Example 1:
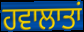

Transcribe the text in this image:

ਹਵਾਲਾਤਾਂ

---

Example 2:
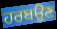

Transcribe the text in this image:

ਹਰਬਉਣ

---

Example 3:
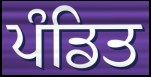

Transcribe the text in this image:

ਪੰਡਿਤ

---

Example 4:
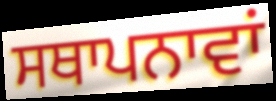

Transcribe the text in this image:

ਸਥਾਪਨਾਵਾਂ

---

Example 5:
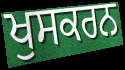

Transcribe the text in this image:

ਖੁਸਕਰਨ